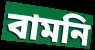
বামনি